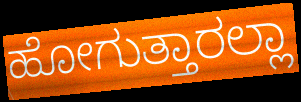
ಹೋಗುತ್ತಾರಲ್ಲಾ